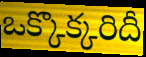
ఒక్కొక్కరిదీ